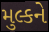
મુલ્કને